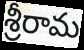
శ్రీరామ